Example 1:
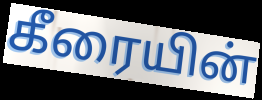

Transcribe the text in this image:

கீரையின்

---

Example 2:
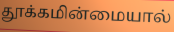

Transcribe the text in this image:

தூக்கமின்மையால்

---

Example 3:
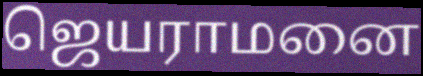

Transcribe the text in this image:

ஜெயராமனை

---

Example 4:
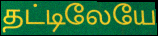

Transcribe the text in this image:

தட்டிலேயே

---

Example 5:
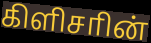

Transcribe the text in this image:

கிளிசரின்